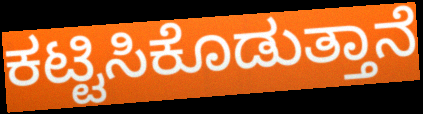
ಕಟ್ಟಿಸಿಕೊಡುತ್ತಾನೆ